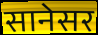
सानेसर